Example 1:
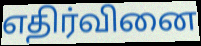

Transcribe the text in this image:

எதிர்வினை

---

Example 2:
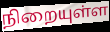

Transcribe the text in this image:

நிறையுள்ள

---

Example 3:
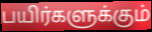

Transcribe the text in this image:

பயிர்களுக்கும்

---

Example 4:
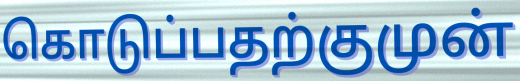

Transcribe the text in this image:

கொடுப்பதற்குமுன்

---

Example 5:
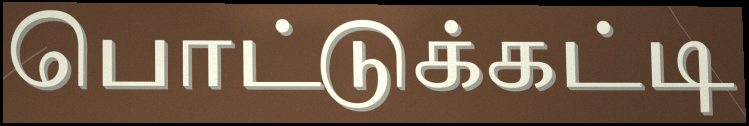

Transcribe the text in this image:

பொட்டுக்கட்டி